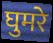
घुमरे